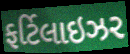
ફર્ટિલાઇઝર